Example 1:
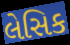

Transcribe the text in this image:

લેસિક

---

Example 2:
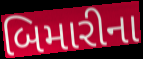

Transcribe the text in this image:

બિમારીના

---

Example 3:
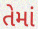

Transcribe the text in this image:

તેમાં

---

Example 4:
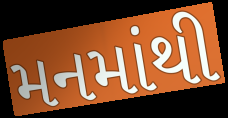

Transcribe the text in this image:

મનમાંથી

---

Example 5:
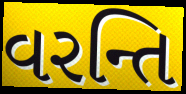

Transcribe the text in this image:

વરન્તિ